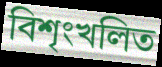
বিশৃংখলিত